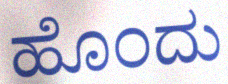
ಹೊಂದು